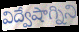
విద్వేషాగ్నిని